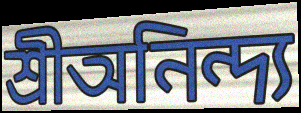
শ্রীঅনিন্দ্য